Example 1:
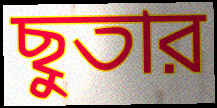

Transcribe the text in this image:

ছুতার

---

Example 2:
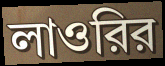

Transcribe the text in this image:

লাওরির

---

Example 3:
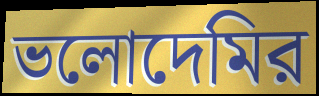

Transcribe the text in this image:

ভলোদেমির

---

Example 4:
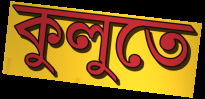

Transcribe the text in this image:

কুলুতে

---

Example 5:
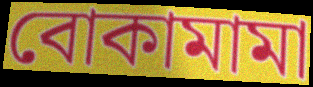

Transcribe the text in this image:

বোকামামা